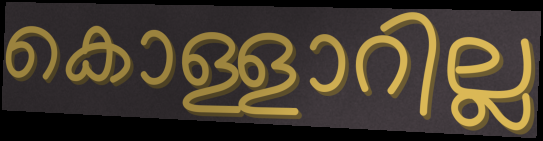
കൊള്ളാറില്ല